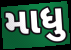
માધુ